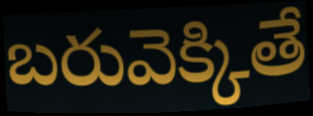
బరువెక్కితే